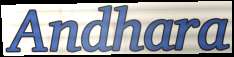
Andhara